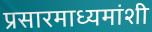
प्रसारमाध्यमांशी